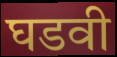
घडवी